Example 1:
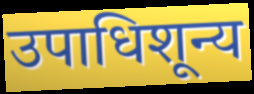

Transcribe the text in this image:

उपाधिशून्य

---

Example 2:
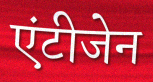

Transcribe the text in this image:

एंटीजेन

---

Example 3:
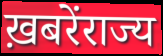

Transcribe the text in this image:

ख़बरेंराज्य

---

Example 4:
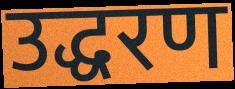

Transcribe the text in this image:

उद्धरण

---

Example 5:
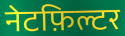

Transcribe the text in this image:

नेटफ़िल्टर